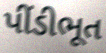
પીંડીભૂત